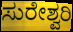
ಸುರೇಶ್ವರಿ